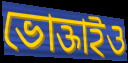
ভোক্তাইও